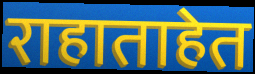
राहाताहेत